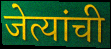
जेत्यांची